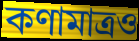
কণামাত্রও